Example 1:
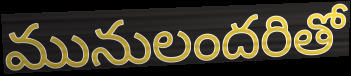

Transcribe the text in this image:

మునులందరితో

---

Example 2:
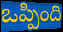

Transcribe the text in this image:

ఒప్పింది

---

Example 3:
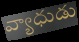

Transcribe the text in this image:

వ్యాధుడు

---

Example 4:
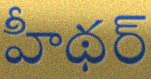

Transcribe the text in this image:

హీథర్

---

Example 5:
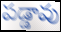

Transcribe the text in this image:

పడ్డావు